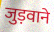
जुड़वाने